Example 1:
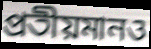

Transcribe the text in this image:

প্রতীয়মানও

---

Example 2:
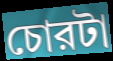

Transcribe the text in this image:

চোরটা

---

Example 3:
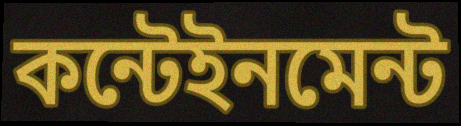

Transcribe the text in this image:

কন্টেইনমেন্ট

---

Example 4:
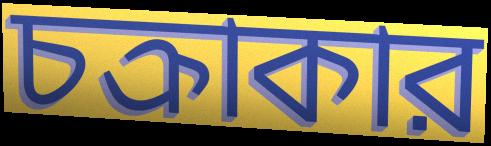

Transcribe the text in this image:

চক্রাকার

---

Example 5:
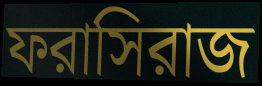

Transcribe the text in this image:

ফরাসিরাজ